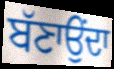
ਬੱਣਾਉਂਦਾ